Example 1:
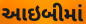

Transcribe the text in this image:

આઇબીમાં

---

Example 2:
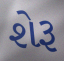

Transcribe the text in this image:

શેરૂ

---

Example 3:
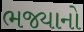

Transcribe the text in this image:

ભજ્યાનો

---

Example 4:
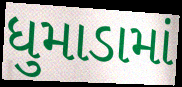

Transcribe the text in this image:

ધુમાડામાં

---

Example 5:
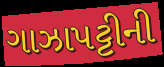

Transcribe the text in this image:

ગાઝાપટ્ટીની